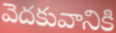
వెదకువానికి